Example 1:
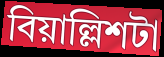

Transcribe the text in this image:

বিয়াল্লিশটা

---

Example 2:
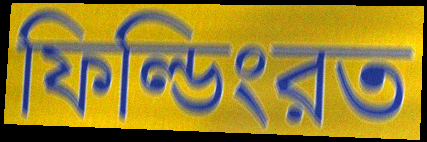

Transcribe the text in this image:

ফিল্ডিংরত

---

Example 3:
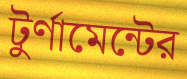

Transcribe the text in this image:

টুর্ণামেন্টের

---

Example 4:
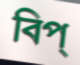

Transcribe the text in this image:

বিপ্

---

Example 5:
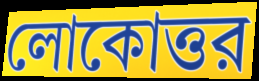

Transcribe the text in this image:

লোকোত্তর